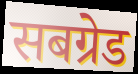
सबग्रेड